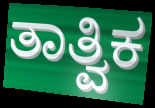
ತಾತ್ವಿಕ